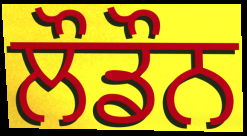
ਲੌਡੌਨ